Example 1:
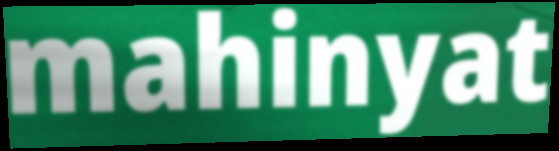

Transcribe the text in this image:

mahinyat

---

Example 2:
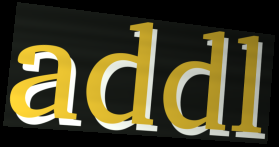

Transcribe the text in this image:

addl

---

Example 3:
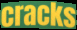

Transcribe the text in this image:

cracks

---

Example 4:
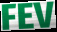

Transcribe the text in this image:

FEV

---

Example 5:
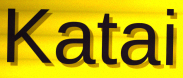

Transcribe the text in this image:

Katai